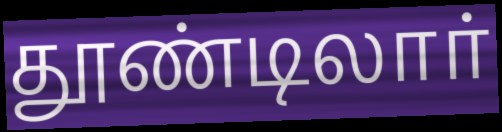
தூண்டிலார்